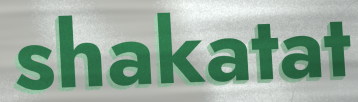
shakatat